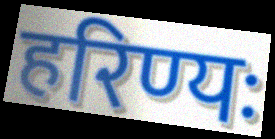
हरिण्यः